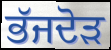
ਭੱਜਦੋੜ